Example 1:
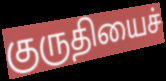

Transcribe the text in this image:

குருதியைச்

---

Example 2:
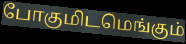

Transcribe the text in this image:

போகுமிடமெங்கும்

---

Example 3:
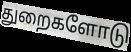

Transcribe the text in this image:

துறைகளோடு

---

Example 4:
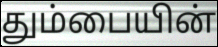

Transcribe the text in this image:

தும்பையின்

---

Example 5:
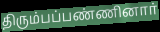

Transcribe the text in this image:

திரும்பப்பண்ணினார்